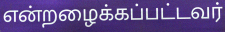
என்றழைக்கப்பட்டவர்